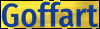
Goffart